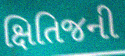
ક્ષિતિજની